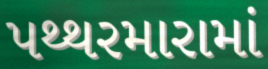
પથ્થરમારામાં